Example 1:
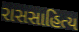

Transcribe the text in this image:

રાસસાહિત્ય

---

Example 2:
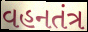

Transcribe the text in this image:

વહનતંત્ર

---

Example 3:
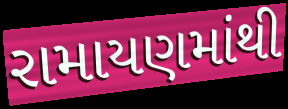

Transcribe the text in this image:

રામાયણમાંથી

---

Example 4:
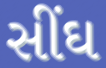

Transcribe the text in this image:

સીંઘ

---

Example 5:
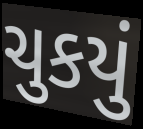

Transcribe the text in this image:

ચુકયું